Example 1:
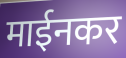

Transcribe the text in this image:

माईनकर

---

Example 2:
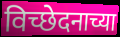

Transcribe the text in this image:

विच्छेदनाच्या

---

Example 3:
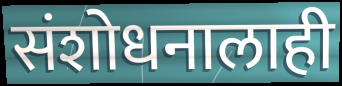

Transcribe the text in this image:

संशोधनालाही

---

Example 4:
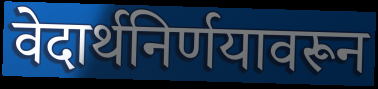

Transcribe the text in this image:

वेदार्थनिर्णयावरून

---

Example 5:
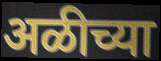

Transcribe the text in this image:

अळीच्या